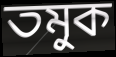
তমুক